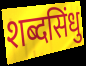
शब्दसिंधु